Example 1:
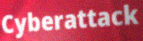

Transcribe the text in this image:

Cyberattack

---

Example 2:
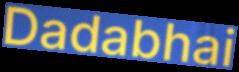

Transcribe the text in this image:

Dadabhai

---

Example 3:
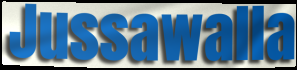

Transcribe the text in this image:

Jussawalla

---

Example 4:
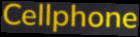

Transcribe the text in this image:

Cellphone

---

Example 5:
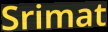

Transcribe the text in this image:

Srimat